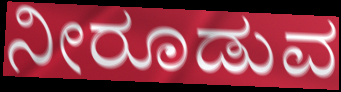
ನೀರೂಡುವ